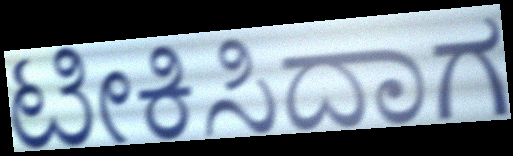
ಟೀಕಿಸಿದಾಗ